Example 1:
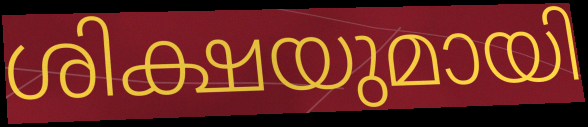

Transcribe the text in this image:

ശിക്ഷയുമായി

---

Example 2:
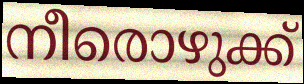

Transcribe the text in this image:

നീരൊഴുക്ക്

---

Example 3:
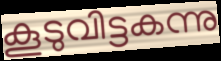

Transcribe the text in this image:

കൂടുവിട്ടകന്നു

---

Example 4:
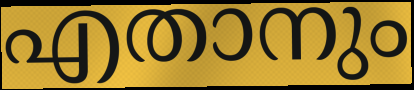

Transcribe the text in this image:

എതാനും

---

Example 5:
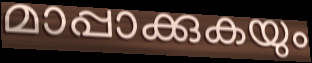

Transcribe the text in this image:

മാപ്പാക്കുകയും